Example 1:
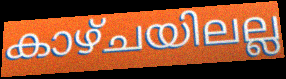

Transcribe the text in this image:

കാഴ്ചയിലല്ല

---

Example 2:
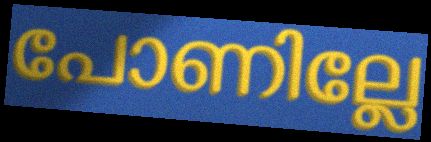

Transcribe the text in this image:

പോണില്ലേ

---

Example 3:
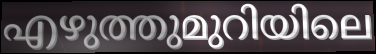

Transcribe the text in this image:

എഴുത്തുമുറിയിലെ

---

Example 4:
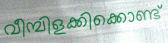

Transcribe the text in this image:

വീമ്പിളക്കിക്കൊണ്ട്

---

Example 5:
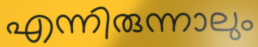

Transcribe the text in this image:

എന്നിരുന്നാലും